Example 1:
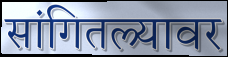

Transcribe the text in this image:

सांगितल्यावर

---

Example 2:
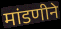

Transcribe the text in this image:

मांडणीने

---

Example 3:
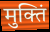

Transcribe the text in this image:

मुक्तिं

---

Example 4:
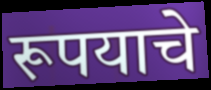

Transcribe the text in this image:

रूपयाचे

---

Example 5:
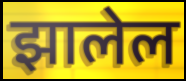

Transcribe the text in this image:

झालेल